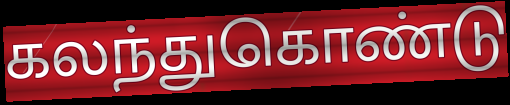
கலந்துகொண்டு